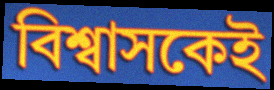
বিশ্বাসকেই